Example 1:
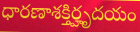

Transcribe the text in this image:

ధారణాశక్తిర్హృదయం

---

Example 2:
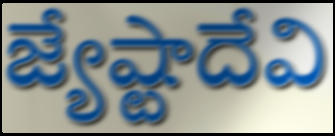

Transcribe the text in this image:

జ్యేష్టాదేవి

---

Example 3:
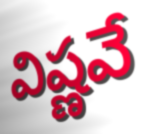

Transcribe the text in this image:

విష్ణవే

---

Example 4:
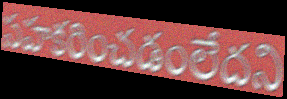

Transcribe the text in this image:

సహకరించడంలేదని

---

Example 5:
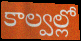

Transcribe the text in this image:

కాల్వల్లో